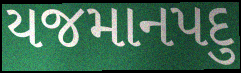
યજમાનપદુ